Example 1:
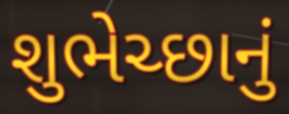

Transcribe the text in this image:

શુભેચ્છાનું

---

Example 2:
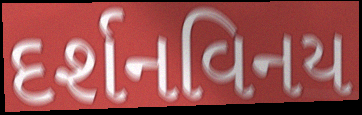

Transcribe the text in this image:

દર્શનવિનય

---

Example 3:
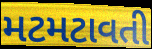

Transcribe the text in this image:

મટમટાવતી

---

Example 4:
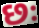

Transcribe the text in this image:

છઃ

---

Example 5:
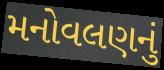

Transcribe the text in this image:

મનોવલણનું